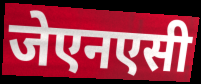
जेएनएसी